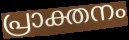
പ്രാക്തനം